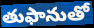
తుఫానుతో